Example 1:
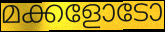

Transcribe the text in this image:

മക്കളോടോ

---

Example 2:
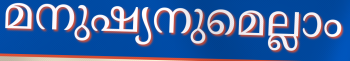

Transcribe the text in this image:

മനുഷ്യനുമെല്ലാം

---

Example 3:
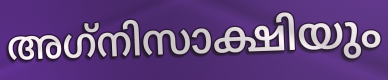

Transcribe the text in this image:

അഗ്‌നിസാക്ഷിയും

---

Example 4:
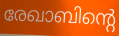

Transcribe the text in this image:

രേഖാബിന്റെ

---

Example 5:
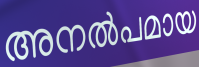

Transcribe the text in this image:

അനൽപമായ